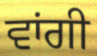
ਵਾਂਗੀ